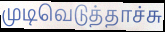
முடிவெடுத்தாச்சு